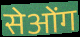
सेओंग